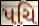
પચિ